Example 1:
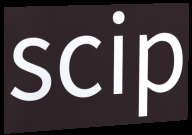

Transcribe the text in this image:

scip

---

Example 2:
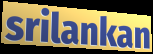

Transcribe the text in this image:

srilankan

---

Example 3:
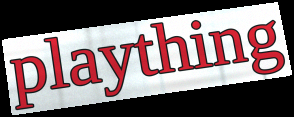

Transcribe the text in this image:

plaything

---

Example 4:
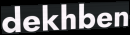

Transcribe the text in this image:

dekhben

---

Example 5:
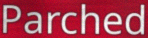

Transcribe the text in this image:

Parched